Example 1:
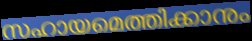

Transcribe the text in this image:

സഹായമെത്തിക്കാനും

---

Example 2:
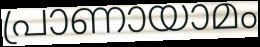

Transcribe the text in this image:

പ്രാണായാമം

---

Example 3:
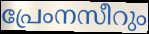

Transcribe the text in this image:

പ്രേംനസീറും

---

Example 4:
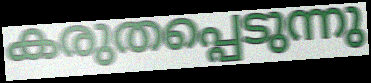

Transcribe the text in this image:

കരുതപ്പെടുന്നു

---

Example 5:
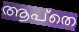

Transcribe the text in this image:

ആപ്‌തെ